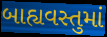
બાહ્યવસ્તુમાં